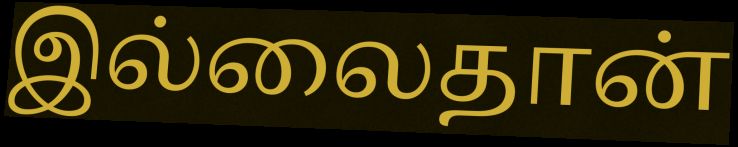
இல்லைதான்